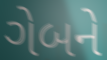
ગેબને